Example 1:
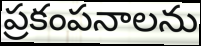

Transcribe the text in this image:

ప్రకంపనాలను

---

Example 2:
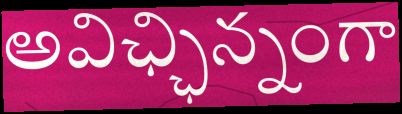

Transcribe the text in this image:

అవిఛ్ఛిన్నంగా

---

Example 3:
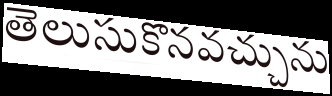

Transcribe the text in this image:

తెలుసుకొనవచ్చును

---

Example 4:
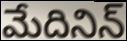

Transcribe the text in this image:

మేదినిన్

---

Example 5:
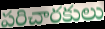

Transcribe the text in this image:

పరిచారకులు